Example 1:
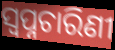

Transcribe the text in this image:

ସ୍ୱପ୍ନଚାରିଣୀ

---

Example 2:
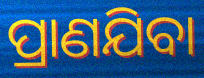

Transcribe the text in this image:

ପ୍ରାଣଯିବା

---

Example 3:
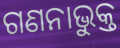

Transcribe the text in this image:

ଗଣନାଭୁକ୍ତ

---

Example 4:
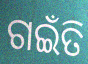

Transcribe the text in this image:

ଗଇଁତି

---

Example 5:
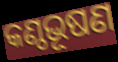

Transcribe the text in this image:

କଣ୍ଠଭୂଷଣ